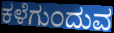
ಕಳೆಗುಂದುವ